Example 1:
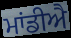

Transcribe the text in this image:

ਮਾਂਡੀਐ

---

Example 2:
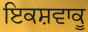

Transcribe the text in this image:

ਇਕਸ਼ਵਾਕੂ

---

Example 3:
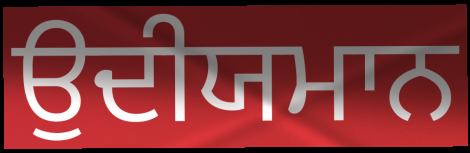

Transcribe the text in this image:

ਉਦੀਯਮਾਨ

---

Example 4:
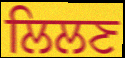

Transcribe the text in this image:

ਲਿਲਣ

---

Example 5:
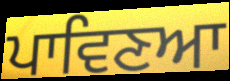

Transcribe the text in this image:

ਪਾਵਿਣਆ